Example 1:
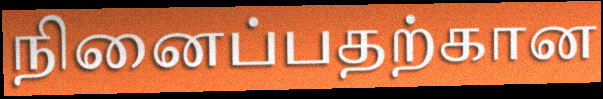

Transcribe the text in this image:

நினைப்பதற்கான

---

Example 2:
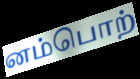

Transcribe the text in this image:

னம்பொற்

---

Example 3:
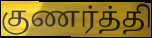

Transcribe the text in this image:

குணர்த்தி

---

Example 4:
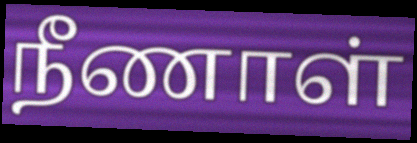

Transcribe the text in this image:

நீணாள்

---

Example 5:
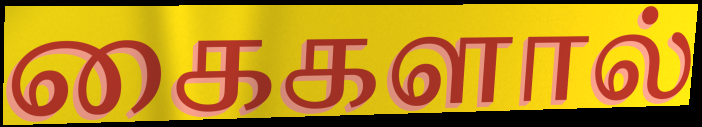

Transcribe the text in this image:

கைகளால்